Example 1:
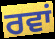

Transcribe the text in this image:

ਰਵਾਂ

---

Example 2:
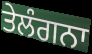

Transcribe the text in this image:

ਤੇਲੰਗਨਾ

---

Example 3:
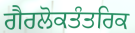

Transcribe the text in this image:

ਗੈਰਲੋਕਤੰਤਰਿਕ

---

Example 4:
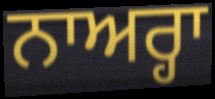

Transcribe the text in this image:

ਨਾਅਰ੍ਹਾ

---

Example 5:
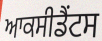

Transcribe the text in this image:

ਆਕਸੀਡੈਂਟਸ